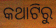
କଥାଟିରୁ